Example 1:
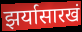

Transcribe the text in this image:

झर्यासारखं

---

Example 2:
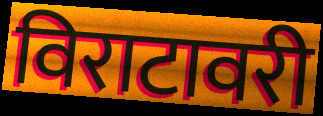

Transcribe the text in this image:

विराटावरी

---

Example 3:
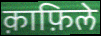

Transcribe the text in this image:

क़ाफ़िले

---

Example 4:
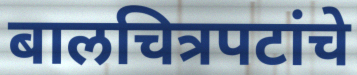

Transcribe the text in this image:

बालचित्रपटांचे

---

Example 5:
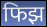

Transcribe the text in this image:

फिझ